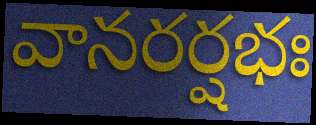
వానరర్షభః